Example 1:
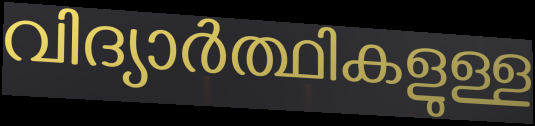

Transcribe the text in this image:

വിദ്യാർത്ഥികളുള്ള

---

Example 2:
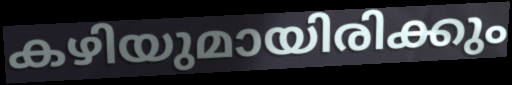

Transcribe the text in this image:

കഴിയുമായിരിക്കും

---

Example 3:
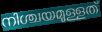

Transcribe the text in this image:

നിശ്ചയമുള്ളത്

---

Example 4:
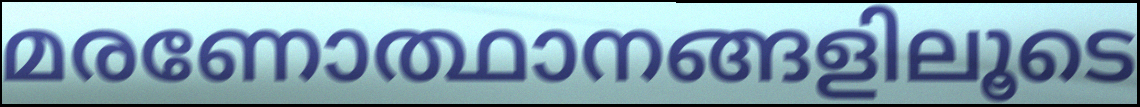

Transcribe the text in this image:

മരണോത്ഥാനങ്ങളിലൂടെ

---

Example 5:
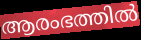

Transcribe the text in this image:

ആരംഭത്തിൽ